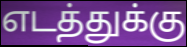
எடத்துக்கு